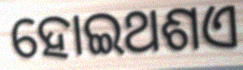
ହୋଇଥଶଏ